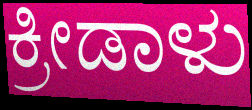
ಕ್ರೀಡಾಳು